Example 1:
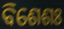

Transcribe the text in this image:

ବିଶେଶଃ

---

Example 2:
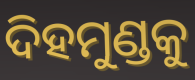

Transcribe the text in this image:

ଦିହମୁଣ୍ଡକୁ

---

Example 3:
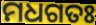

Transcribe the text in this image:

ମଧଗତଃ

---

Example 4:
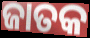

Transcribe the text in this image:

ଜାତକ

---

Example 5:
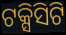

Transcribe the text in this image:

ଟକ୍ସିସିଟି